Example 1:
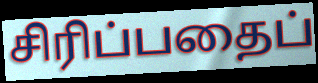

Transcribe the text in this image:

சிரிப்பதைப்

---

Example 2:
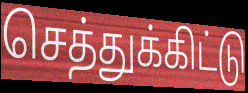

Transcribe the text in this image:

செத்துக்கிட்டு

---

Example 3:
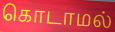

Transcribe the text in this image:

கொடாமல்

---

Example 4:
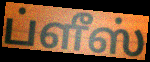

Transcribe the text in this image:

ப்ளீஸ்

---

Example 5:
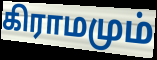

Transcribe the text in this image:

கிராமமும்